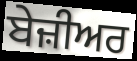
ਬੇਜ਼ੀਅਰ